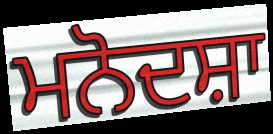
ਮਨੋਦਸ਼ਾ